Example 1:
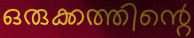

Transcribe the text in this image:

ഒരുക്കത്തിന്റെ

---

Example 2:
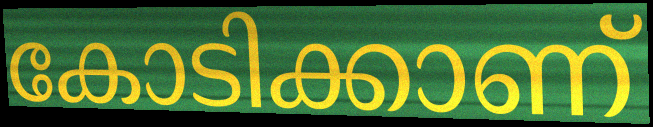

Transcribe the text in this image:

കോടിക്കാണ്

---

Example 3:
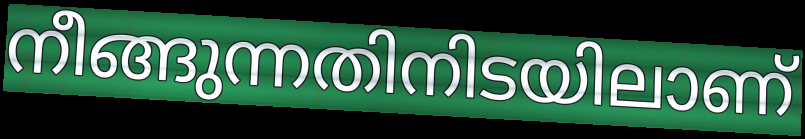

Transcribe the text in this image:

നീങ്ങുന്നതിനിടയിലാണ്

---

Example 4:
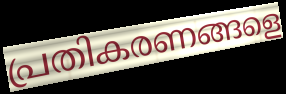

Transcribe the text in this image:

പ്രതികരണങ്ങളെ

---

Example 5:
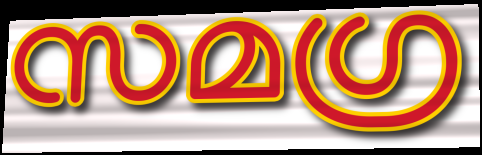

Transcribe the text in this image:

സമഗ്ര